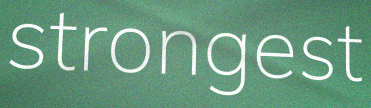
strongest